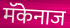
मॅकेनाज